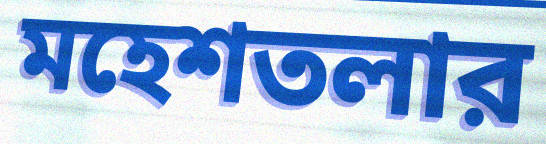
মহেশতলার